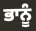
ਭਾਨੂੰ